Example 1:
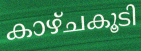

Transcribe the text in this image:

കാഴ്ചകൂടി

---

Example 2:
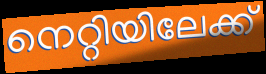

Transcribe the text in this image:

നെറ്റിയിലേക്ക്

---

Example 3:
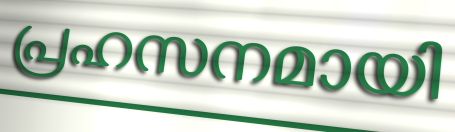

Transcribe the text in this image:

പ്രഹസനമായി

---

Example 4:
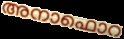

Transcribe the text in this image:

അനാഫൊറ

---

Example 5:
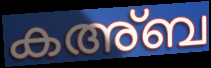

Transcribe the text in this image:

കഅ്ബ